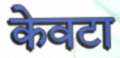
केवटा